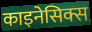
काइनेसिक्स